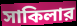
সাকিলার